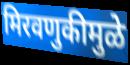
मिरवणुकीमुळे